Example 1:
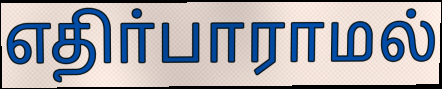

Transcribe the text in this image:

எதிர்பாராமல்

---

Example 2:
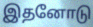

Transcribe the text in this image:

இதனோடு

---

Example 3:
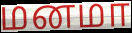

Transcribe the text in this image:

மனமா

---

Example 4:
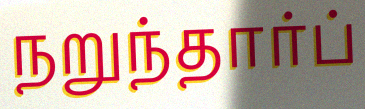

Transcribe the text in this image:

நறுந்தார்ப்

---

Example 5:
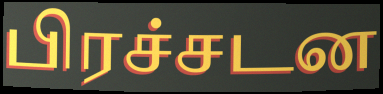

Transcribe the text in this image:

பிரச்சடன